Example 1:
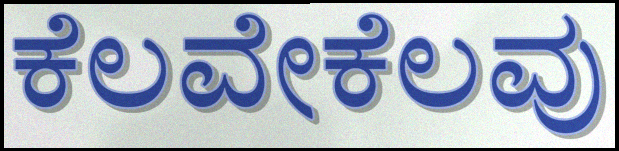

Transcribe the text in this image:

ಕೆಲವೇಕೆಲವು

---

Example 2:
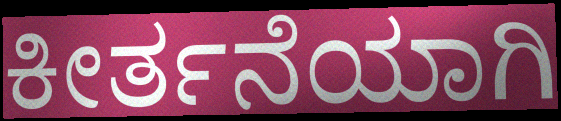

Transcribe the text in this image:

ಕೀರ್ತನೆಯಾಗಿ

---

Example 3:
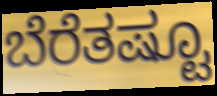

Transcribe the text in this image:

ಬೆರೆತಷ್ಟೂ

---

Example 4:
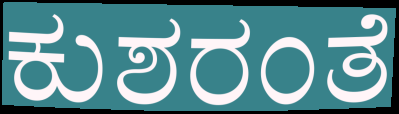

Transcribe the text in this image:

ಕುಶರಂತೆ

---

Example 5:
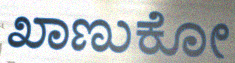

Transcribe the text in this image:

ಖಾಣುಕೋ